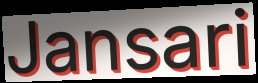
Jansari